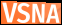
VSNA